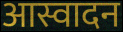
आस्वादन